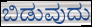
ಬಿಡುವುದು